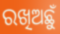
ରଖିଅଛୁଁ